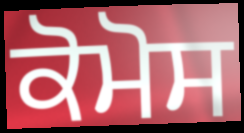
ਕੋਮੋਸ